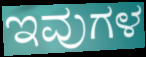
ಇವುಗಳ